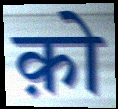
क़ो